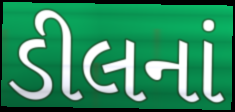
ડીલનાં